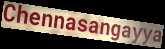
Chennasangayya